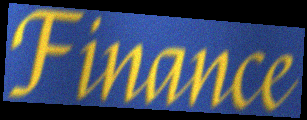
Finance